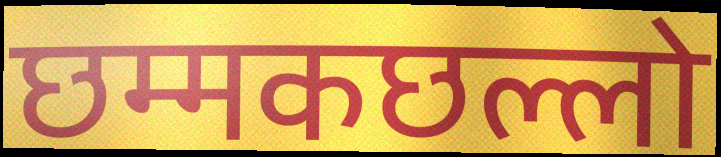
छम्मकछल्लो